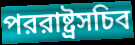
পররাষ্ট্রসচিব